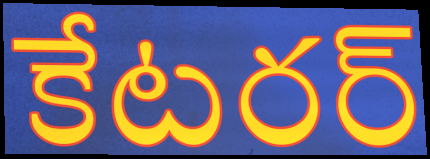
కేటరర్